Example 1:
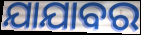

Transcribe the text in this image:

ଯାଯାବର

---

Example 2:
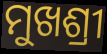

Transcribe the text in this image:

ମୁଖଶ୍ରୀ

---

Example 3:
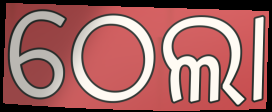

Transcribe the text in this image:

ଠେଲା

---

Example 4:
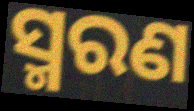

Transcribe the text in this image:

ସ୍ମରଣ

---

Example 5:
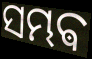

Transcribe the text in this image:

ସମ୍ଭଵ